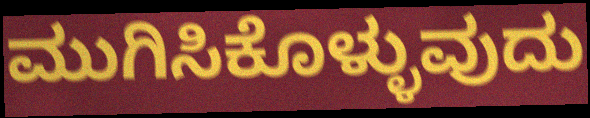
ಮುಗಿಸಿಕೊಳ್ಳುವುದು